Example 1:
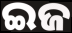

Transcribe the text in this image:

ଇଜ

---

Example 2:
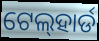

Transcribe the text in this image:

ଟେଲ୍‍ହାର୍ଡ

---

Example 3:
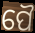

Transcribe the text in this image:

ପୈ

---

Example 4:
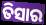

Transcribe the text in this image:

ତିସାର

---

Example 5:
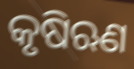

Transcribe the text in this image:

କୃଷିଋଣ